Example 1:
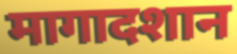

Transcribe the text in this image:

मागादशान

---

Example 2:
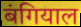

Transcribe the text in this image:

बंगियाल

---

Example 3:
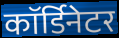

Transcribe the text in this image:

कॉर्डिनेटर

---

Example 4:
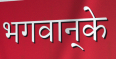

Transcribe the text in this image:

भगवान्‌के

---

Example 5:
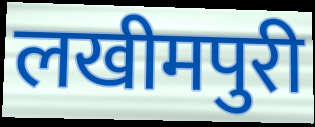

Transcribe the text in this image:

लखीमपुरी